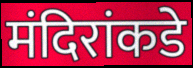
मंदिरांकडे